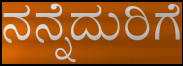
ನನ್ನೆದುರಿಗೆ